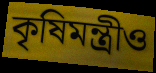
কৃষিমন্ত্রীও